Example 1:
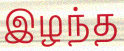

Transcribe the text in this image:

இழந்த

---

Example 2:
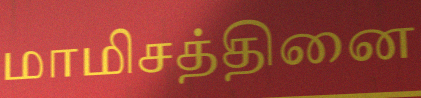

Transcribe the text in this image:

மாமிசத்தினை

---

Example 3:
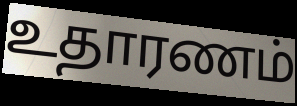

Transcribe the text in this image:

உதாரணம்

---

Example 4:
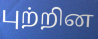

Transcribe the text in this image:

புற்றின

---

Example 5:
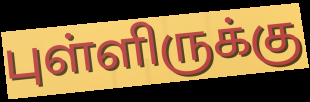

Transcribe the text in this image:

புள்ளிருக்கு